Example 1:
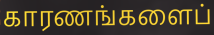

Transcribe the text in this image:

காரணங்களைப்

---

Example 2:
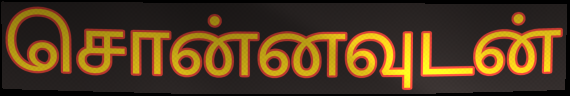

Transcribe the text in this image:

சொன்னவுடன்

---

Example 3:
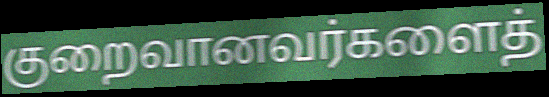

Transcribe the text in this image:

குறைவானவர்களைத்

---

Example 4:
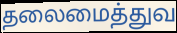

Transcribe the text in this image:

தலைமைத்துவ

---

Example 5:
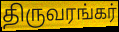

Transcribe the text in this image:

திருவரங்கர்